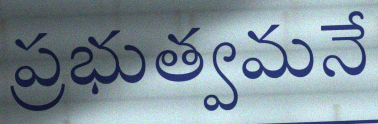
ప్రభుత్వమనే